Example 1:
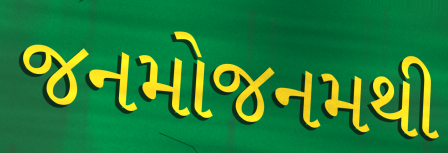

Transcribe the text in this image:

જનમોજનમથી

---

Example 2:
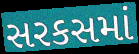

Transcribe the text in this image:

સરકસમાં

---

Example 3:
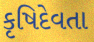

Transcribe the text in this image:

કૃષિદેવતા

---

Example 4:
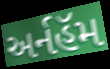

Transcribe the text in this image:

અર્નહૅમ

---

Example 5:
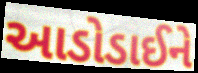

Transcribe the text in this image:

આડોડાઈને